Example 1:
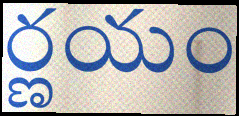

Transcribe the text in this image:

ర్ణయం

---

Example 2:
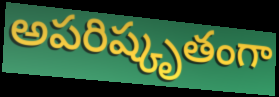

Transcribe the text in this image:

అపరిష్కృతంగా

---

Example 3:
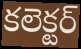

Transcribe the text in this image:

కలెక్టర్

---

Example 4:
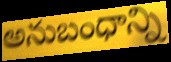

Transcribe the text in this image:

అనుబంధాన్ని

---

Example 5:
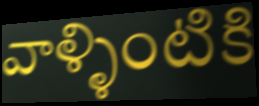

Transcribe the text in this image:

వాళ్ళింటికి